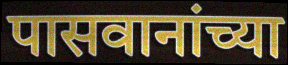
पासवानांच्या